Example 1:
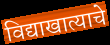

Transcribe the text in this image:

विद्याखात्याचे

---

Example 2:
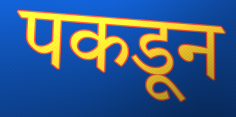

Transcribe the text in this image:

पकडून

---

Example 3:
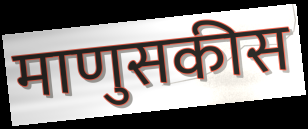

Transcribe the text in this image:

माणुसकीस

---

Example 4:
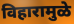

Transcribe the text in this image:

विहारामुळे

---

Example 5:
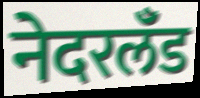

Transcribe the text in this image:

नेदरलँड